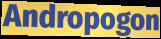
Andropogon